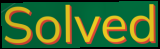
Solved